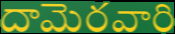
దామెరవారి